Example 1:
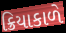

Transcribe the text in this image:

ક્રિયાકાળે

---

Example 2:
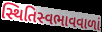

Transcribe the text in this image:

સ્થિતિસ્વભાવવાળાં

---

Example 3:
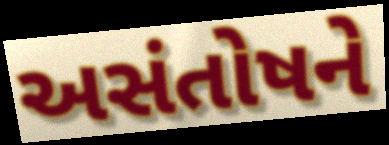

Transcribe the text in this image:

અસંતોષને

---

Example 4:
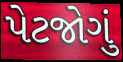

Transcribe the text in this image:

પેટજોગું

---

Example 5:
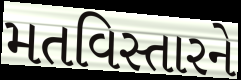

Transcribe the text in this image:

મતવિસ્તારને